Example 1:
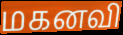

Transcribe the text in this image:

மகனவி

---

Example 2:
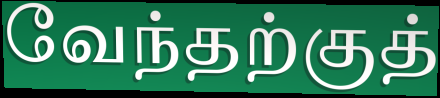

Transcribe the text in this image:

வேந்தற்குத்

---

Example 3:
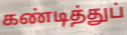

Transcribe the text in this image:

கண்டித்துப்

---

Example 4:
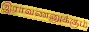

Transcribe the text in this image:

இராவணனுக்கும்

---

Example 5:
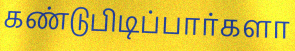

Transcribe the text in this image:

கண்டுபிடிப்பார்களா